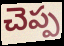
చెప్ప